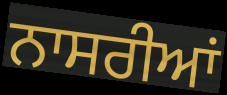
ਨਾਸਰੀਆਂ